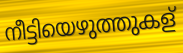
നീട്ടിയെഴുത്തുകള്